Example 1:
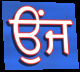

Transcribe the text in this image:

ਉੰਜ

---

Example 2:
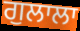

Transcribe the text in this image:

ਗੁਲਾਲਾ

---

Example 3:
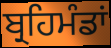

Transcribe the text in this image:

ਬ੍ਰਹਿਮੰਡਾਂ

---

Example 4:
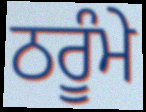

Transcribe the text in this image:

ਠਰੂੰਮੇ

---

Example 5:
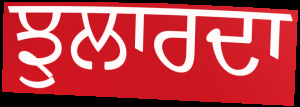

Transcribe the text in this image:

ਝੁਲਾਰਦਾ